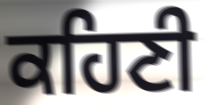
ਕਹਿਣੀ